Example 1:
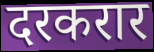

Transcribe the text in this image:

दरकरार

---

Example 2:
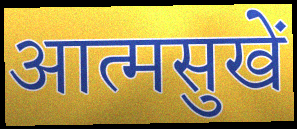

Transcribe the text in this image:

आत्मसुखें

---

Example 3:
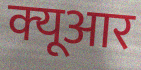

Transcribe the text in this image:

क्‍यूआर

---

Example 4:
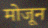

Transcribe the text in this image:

मोजून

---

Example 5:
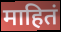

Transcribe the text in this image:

माहितं